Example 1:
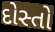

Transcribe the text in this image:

દોસ્તો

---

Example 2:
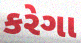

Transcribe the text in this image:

કરેગા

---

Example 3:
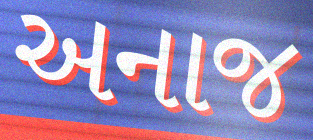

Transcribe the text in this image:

અનાજ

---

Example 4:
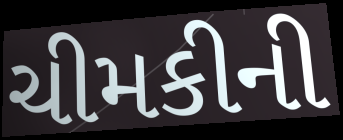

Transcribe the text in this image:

ચીમકીની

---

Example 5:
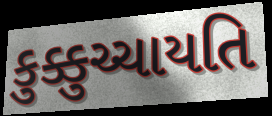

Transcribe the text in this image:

કુક્કુચ્ચાયતિ